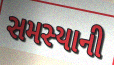
સમસ્યાની